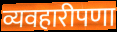
व्यवहारीपणा